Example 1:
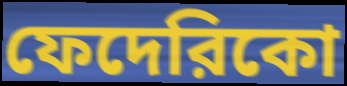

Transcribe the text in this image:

ফেদেরিকো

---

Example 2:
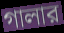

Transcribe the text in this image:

গালার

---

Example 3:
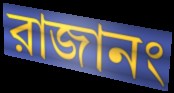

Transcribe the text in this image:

রাজানং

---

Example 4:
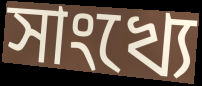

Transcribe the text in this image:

সাংখ্যে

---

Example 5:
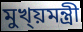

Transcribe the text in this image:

মুখ্য়মন্ত্রী